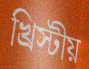
খ্রিস্টীয়